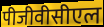
पीजीवीसीएल